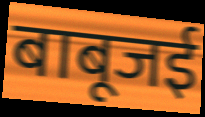
बाबूजई